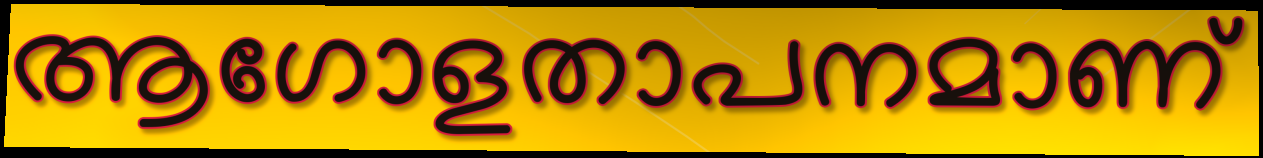
ആഗോളതാപനമാണ്